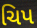
ચિપ